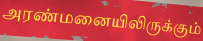
அரண்மனையிலிருக்கும்